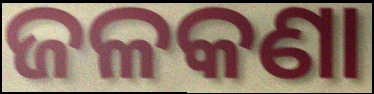
ଜଳକଣା